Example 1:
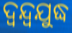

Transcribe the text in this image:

ଦ୍ୱନ୍ଦ୍ୱଯୁଦ୍ଧ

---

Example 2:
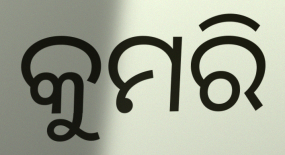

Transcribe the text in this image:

କୁମରି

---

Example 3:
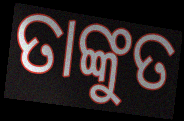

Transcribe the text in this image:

ତାଙ୍କୁତ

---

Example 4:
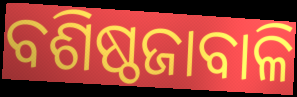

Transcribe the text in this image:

ବଶିଷ୍ଠଜାବାଳି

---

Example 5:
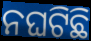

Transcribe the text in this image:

ନଘଟିଛି